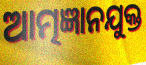
ଆତ୍ମଜ୍ଞାନଯୁକ୍ତ